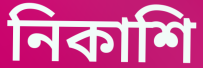
নিকাশি